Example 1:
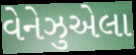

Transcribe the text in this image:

વેનેઝુએલા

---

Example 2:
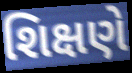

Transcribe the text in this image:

શિક્ષણે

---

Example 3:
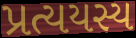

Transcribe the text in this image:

પ્રત્યયસ્ય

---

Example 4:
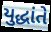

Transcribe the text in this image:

યુદ્ધાંતે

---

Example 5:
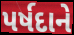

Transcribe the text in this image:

પર્ષદાને